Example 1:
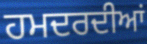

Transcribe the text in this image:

ਹਮਦਰਦੀਆਂ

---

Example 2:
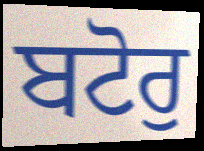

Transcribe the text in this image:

ਬਟੋਰੁ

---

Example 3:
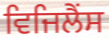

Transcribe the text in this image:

ਵਿਜਿਲੈਂਸ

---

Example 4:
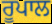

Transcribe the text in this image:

ਰੂਪਾਲ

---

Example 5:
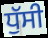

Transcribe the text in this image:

ਧੁੱਸੀ